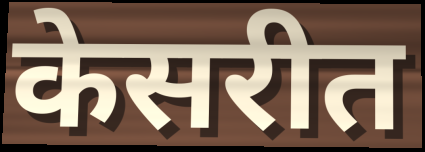
केसरीत